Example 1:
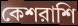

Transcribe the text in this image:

কেশরাশি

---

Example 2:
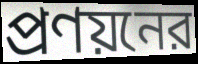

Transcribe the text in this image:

প্রণয়নের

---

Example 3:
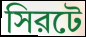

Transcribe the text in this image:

সিরটে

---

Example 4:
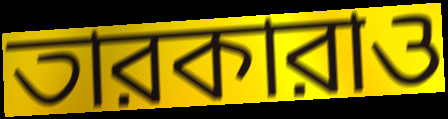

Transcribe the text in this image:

তারকারাও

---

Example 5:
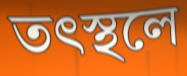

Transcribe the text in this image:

তৎস্থলে